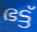
ഭട്ട്